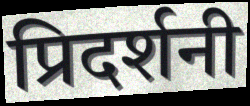
प्रिदर्शनी